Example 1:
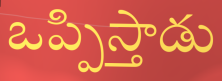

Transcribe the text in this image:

ఒప్పిస్తాడు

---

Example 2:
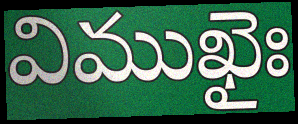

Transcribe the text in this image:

విముఖైః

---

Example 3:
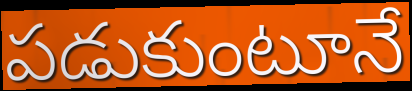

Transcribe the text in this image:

పడుకుంటూనే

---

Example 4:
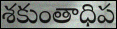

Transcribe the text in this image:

శకుంతాధిప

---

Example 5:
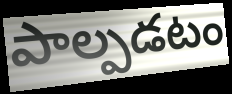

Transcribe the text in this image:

పాల్పడటం